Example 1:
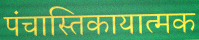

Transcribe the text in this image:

पंचास्तिकायात्मक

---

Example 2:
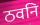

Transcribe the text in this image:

ठवनि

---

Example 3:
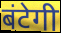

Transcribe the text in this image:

बंटेगी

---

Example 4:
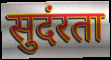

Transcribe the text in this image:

सुदंरता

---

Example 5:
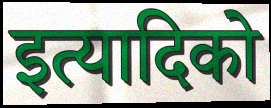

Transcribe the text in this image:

इत्यादिको